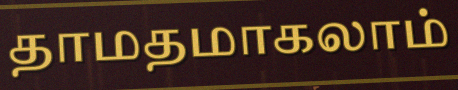
தாமதமாகலாம்